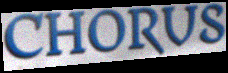
CHORUS